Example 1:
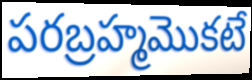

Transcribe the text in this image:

పరబ్రహ్మమొకటే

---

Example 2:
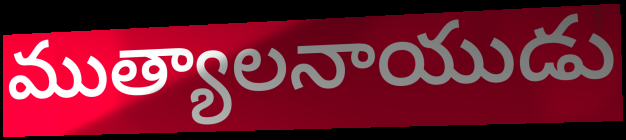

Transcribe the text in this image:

ముత్యాలనాయుడు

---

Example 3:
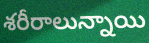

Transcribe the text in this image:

శరీరాలున్నాయి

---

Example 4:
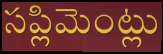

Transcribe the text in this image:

సప్లిమెంట్లు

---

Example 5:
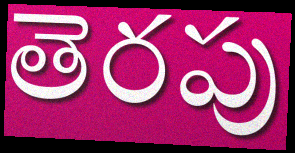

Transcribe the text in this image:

తెరపు